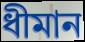
ধীমান